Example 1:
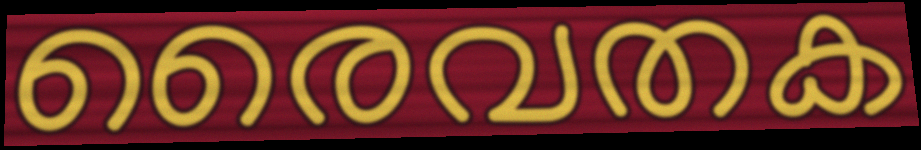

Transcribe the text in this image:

രൈവതക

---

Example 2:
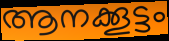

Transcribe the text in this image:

ആനക്കൂട്ടം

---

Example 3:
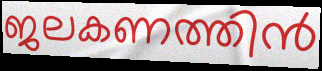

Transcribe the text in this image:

ജലകണത്തിൻ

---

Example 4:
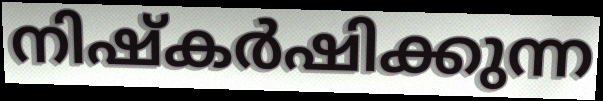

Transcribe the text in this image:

നിഷ്കർഷിക്കുന്ന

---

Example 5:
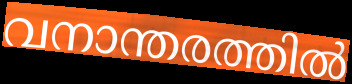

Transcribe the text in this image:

വനാന്തരത്തിൽ